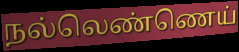
நல்லெண்ணெய்